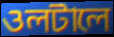
ওলটালে